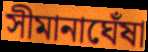
সীমানাঘেঁষা